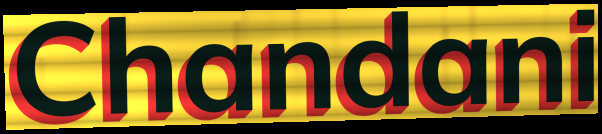
Chandani